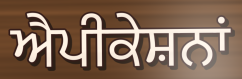
ਐਪੀਕੇਸ਼ਨਾਂ